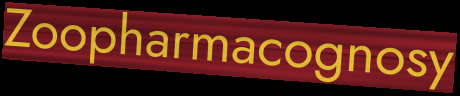
Zoopharmacognosy